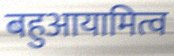
बहुआयामित्व